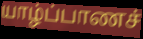
யாழ்ப்பாணச்